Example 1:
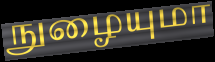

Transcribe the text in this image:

நுழையுமா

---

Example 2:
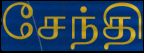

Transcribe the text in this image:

சேந்தி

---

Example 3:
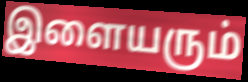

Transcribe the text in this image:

இளையரும்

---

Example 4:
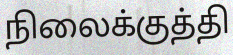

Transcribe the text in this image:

நிலைக்குத்தி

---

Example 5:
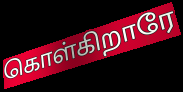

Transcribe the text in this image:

கொள்கிறாரே